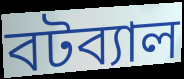
বটব্যাল